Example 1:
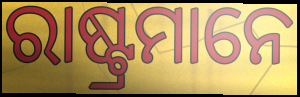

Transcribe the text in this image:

ରାଷ୍ଟ୍ରମାନେ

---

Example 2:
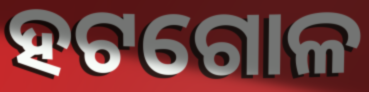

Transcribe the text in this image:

ହଟଗୋଳ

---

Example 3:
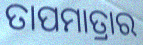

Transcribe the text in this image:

ତାପମାତ୍ରାର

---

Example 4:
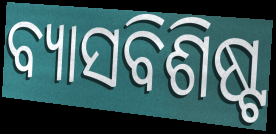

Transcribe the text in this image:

ବ୍ୟାସବିଶିଷ୍ଟ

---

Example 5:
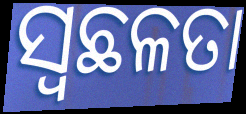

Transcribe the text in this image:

ସ୍ଵଛଳତା